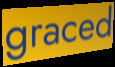
graced